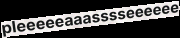
pleeeeeaaasssseeeeee